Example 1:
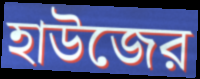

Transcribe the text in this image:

হাউজের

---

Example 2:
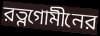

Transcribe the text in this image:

রত্নগোমীনের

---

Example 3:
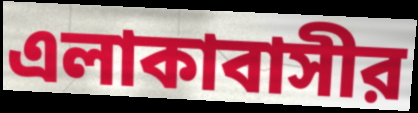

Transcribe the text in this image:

এলাকাবাসীর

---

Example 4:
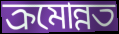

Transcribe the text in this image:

ক্রমোন্নত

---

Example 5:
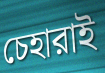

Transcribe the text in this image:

চেহারাই